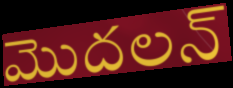
మొదలన్